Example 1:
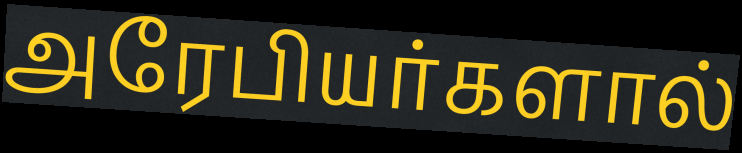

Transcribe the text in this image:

அரேபியர்களால்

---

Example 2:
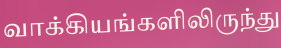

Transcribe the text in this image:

வாக்கியங்களிலிருந்து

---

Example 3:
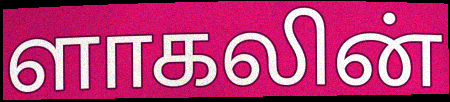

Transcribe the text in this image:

ளாகலின்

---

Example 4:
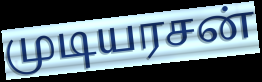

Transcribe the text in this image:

முடியரசன்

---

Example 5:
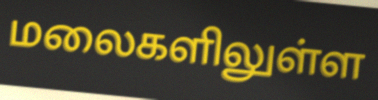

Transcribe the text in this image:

மலைகளிலுள்ள